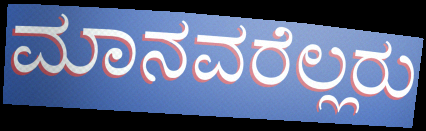
ಮಾನವರೆಲ್ಲರು